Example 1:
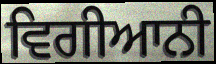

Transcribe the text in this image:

ਵਿਗੀਆਨੀ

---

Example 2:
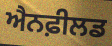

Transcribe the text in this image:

ਐਨਫ਼ੀਲਡ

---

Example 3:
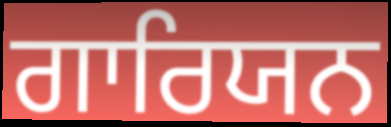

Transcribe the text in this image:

ਗਾਰਿਯਨ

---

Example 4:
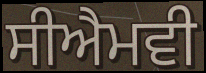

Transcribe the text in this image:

ਸੀਐਮਵੀ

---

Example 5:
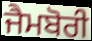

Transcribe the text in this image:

ਜੈਮਬੋਰੀ